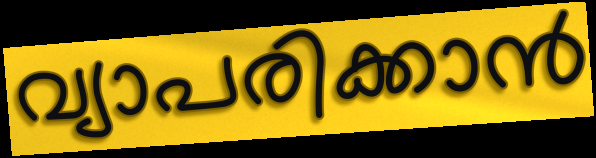
വ്യാപരിക്കാൻ